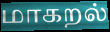
மாகறல்